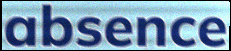
absence